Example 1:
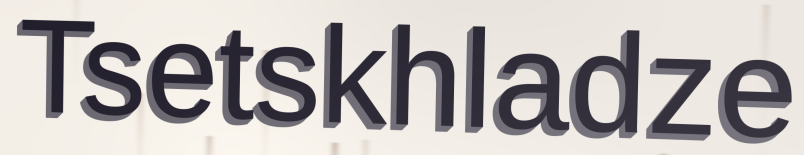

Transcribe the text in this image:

Tsetskhladze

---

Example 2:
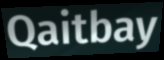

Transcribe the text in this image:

Qaitbay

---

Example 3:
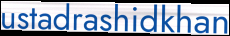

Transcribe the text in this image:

ustadrashidkhan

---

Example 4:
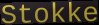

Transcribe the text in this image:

Stokke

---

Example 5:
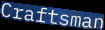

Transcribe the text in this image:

Craftsman